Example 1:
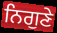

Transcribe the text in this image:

ਨਿਗੁਣੇ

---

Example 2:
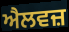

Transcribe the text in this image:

ਐਲਵਜ਼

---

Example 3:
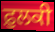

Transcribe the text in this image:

ਫ਼ੁਲਕੀ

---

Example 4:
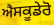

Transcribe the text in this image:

ਐਸਕੂਡੇਰੋ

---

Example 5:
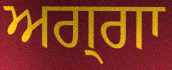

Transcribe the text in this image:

ਅਗ੍ਗਾ